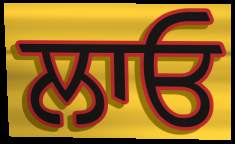
ਲਾਓ